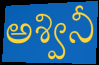
అశ్వినీ